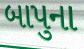
બાપુના